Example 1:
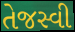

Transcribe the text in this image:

તેજસ્વી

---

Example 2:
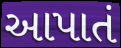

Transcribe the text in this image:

આપાતં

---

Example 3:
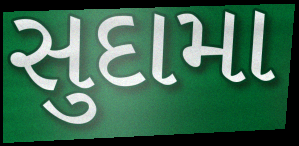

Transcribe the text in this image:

સુદામા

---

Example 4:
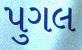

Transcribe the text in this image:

પુગલ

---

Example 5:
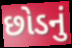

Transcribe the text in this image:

છોડનું